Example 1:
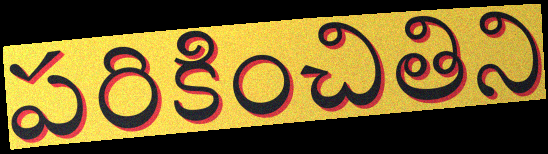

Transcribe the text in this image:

పరికించితిని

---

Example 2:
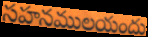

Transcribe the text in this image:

సహనములయందు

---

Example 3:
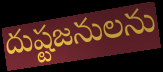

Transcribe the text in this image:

దుష్టజనులను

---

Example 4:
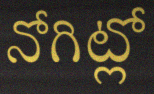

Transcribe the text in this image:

నోగిట్లో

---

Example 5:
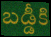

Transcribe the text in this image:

బడ్డీకి